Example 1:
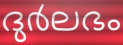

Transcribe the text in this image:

ദുർലഭം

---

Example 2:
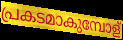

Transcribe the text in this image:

പ്രകടമാകുമ്പോള്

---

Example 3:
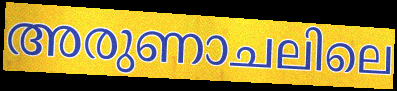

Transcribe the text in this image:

അരുണാചലിലെ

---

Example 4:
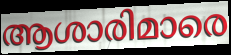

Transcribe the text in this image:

ആശാരിമാരെ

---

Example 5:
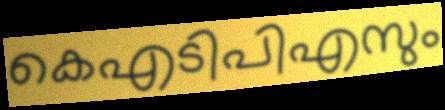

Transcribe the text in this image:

കെഎടിപിഎസും